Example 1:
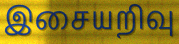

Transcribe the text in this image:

இசையறிவு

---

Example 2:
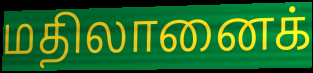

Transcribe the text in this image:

மதிலானைக்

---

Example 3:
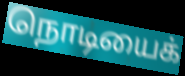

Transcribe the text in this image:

நொடியைக்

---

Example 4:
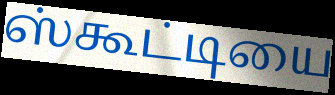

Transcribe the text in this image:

ஸ்கூட்டியை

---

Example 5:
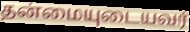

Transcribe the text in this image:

தன்மையுடையவர்